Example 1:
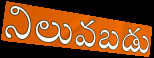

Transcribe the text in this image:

నిలువబడు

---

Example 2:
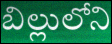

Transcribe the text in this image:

బిల్లులోని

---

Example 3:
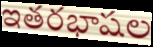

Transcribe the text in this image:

ఇతరభాషల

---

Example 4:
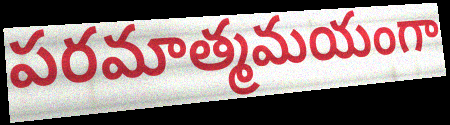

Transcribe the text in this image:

పరమాత్మమయంగా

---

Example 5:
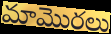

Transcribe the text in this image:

మామొరలు